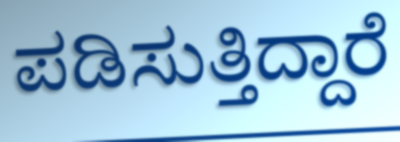
ಪಡಿಸುತ್ತಿದ್ದಾರೆ